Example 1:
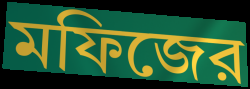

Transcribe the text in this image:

মফিজের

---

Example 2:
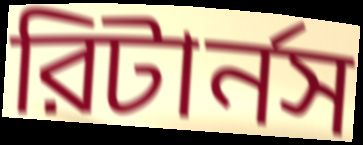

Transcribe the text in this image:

রিটার্নস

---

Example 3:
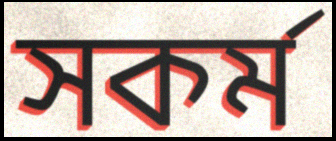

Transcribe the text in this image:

সকর্ম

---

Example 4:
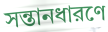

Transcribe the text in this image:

সন্তানধারণে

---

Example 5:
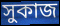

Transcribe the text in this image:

সুকাজ